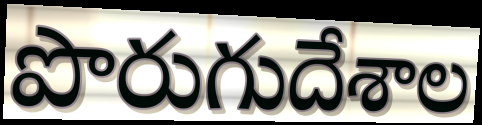
పొరుగుదేశాల